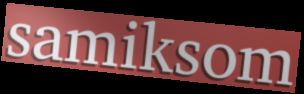
samiksom